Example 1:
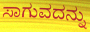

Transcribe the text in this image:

ಸಾಗುವದನ್ನು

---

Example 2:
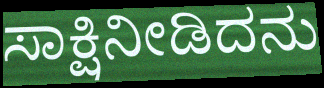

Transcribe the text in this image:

ಸಾಕ್ಷಿನೀಡಿದನು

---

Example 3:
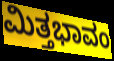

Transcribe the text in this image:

ಮಿತ್ತಭಾವಂ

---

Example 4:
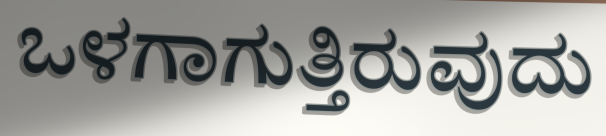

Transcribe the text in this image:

ಒಳಗಾಗುತ್ತಿರುವುದು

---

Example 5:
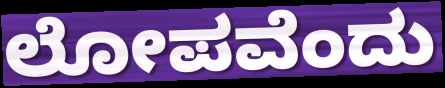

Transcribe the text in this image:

ಲೋಪವೆಂದು